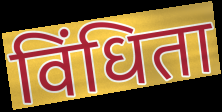
विंधिता